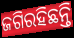
ଜଗିରହିଛନ୍ତି